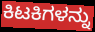
ಕಿಟಕಿಗಳನ್ನು